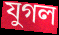
যুগল